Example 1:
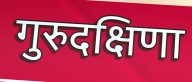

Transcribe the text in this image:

गुरुदक्षिणा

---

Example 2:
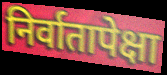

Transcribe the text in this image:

निर्वातापेक्षा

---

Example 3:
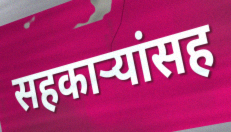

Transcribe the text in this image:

सहकाऱ्यांसह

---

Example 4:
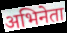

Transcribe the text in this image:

अभिनेता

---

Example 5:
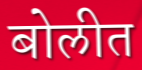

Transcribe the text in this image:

बोलीत